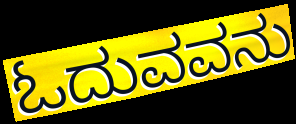
ಓದುವವನು